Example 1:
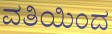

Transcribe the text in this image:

ವತಿಯಿಂದ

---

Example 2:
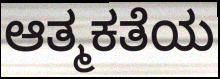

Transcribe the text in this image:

ಆತ್ಮಕತೆಯ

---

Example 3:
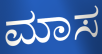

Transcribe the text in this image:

ಮಾಸ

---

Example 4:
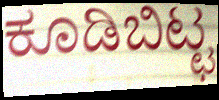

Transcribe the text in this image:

ಕೂಡಿಬಿಟ್ಟ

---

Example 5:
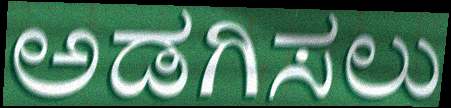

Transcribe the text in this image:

ಅಡಗಿಸಲು